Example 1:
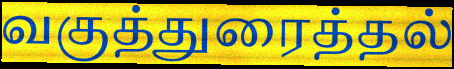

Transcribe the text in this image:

வகுத்துரைத்தல்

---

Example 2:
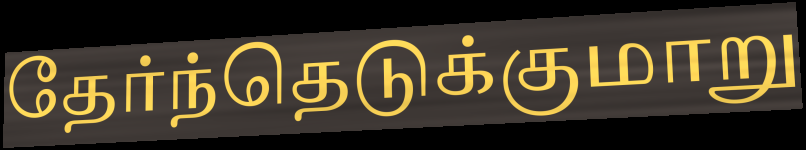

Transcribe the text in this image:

தேர்ந்தெடுக்குமாறு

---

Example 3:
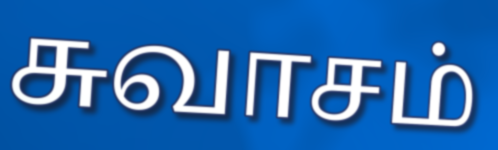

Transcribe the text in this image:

சுவாசம்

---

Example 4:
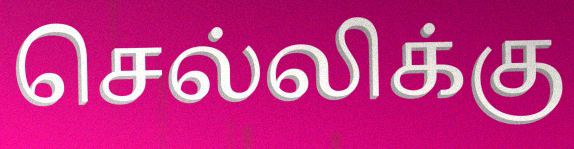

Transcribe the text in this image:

செல்லிக்கு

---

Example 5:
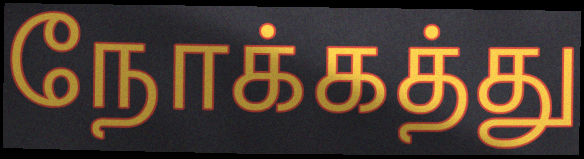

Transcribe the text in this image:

நோக்கத்து